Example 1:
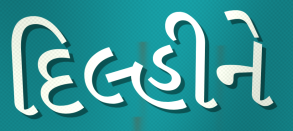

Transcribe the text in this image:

દિલ્હીને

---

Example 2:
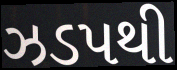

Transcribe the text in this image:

ઝડપથી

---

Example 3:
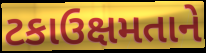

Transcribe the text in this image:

ટકાઉક્ષમતાને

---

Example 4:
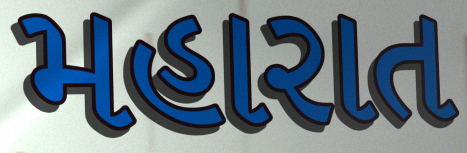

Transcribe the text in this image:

મહારાત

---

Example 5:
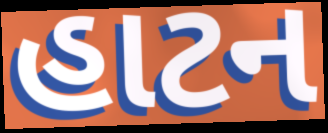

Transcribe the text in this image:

હાટન